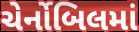
ચેર્નોબિલમાં